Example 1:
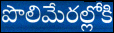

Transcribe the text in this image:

పొలిమేరల్లోకి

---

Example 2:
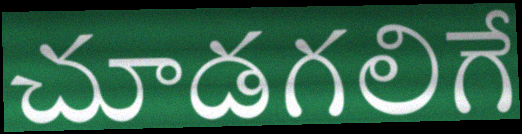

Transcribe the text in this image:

చూడగలిగే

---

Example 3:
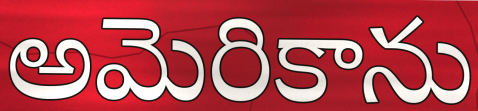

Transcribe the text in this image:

అమెరికాను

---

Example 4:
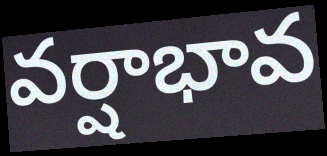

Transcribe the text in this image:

వర్షాభావ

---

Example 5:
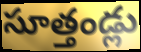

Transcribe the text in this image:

సూత్తండ్లు